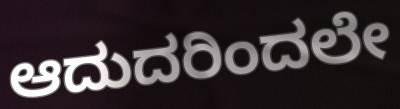
ಆದುದರಿಂದಲೇ